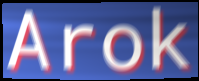
Arok